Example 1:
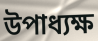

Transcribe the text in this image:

উপাধ্যক্ষ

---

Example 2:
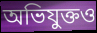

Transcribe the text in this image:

অভিযুক্তও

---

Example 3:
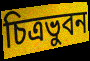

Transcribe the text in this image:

চিত্রভুবন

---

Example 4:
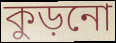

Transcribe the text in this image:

কুড়নো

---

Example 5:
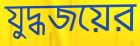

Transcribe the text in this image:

যুদ্ধজয়ের